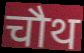
चौथ